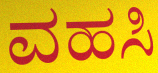
ವಹಸಿ